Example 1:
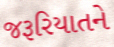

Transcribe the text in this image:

જરૂરિયાતને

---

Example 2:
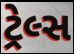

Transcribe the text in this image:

ટ્રેલ્સ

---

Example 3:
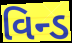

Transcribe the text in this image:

વિન્ડ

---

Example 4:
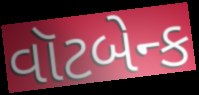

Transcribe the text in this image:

વૉટબેન્ક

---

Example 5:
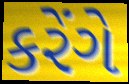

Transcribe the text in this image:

કરેંગે